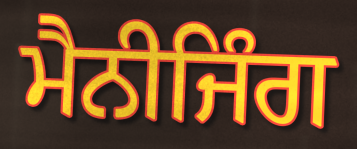
ਮੈਨੀਜਿੰਗ